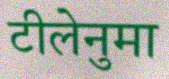
टीलेनुमा